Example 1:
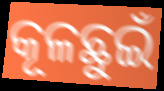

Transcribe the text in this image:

କୂଳଛୁଇଁ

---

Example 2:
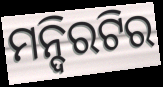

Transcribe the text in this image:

ମନ୍ଦିରଟିର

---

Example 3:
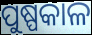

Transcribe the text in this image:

ପୁଷ୍ପକାଳ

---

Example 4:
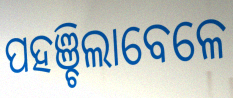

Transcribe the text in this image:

ପହଞ୍ଚିଲାବେଳେ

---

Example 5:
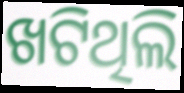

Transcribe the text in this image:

ଖଟିଥିଲି